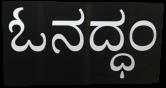
ಓನದ್ಧಂ